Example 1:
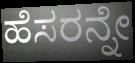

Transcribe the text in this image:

ಹೆಸರನ್ನೇ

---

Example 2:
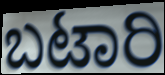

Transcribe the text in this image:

ಬಟಾರಿ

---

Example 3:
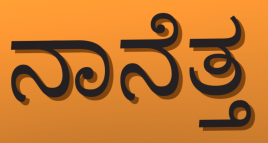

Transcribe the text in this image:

ನಾನೆತ್ತ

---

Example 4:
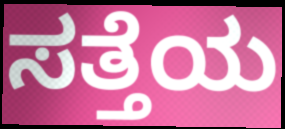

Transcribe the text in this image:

ಸತ್ತೆಯ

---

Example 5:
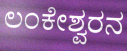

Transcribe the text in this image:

ಲಂಕೇಶ್ವರನ